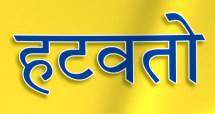
हटवतो